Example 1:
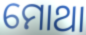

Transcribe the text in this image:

ମୋଥା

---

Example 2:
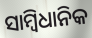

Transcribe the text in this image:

ସାମ୍ବିଧାନିକ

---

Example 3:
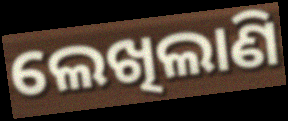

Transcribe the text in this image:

ଲେଖିଲାଣି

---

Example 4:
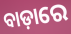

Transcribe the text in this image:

ବାଡ଼ାରେ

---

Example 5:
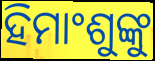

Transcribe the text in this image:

ହିମାଂଶୁଙ୍କୁ